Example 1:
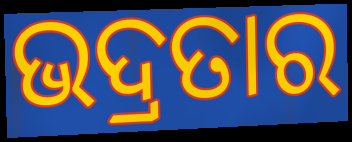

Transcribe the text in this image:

ଭଦ୍ରତାର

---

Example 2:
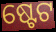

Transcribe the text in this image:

ଷ୍ଟେଟ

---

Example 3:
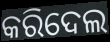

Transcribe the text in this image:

କରିଦେଲ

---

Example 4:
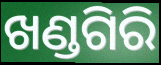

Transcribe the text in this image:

ଖଣ୍ଡଗିରି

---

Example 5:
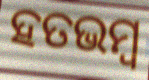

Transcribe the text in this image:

ହତଭମ୍ୱ